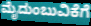
ಮೈದುಂಬುವಿಕೆಗೆ